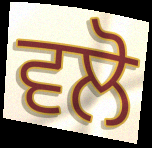
ਵਲੋ